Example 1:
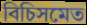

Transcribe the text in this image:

বিচিসমেত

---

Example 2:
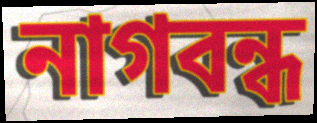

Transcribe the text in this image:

নাগবন্ধ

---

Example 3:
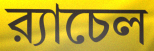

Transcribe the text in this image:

র‍্যাচেল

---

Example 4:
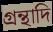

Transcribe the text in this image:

গ্রন্থাদি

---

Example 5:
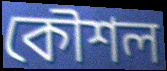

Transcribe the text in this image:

কৌশল